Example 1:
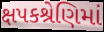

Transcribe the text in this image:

ક્ષપકશ્રેણિમાં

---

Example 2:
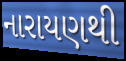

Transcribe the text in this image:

નારાયણથી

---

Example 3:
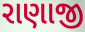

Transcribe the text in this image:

રાણાજી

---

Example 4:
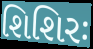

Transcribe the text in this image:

શિશિરઃ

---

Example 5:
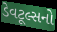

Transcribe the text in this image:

ડેવટૂલ્સનો